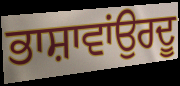
ਭਾਸ਼ਾਵਾਂਉਰਦੂ